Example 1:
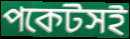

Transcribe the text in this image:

পকেটসই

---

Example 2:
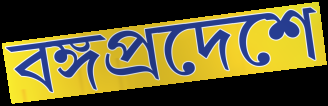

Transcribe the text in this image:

বঙ্গপ্রদেশে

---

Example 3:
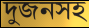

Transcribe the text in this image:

দুজনসহ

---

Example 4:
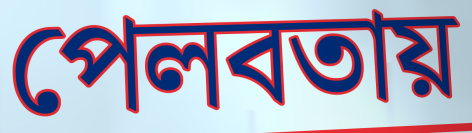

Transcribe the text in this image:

পেলবতায়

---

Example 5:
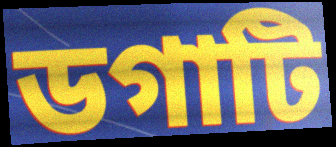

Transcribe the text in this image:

ডগাটি